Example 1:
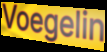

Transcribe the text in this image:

Voegelin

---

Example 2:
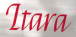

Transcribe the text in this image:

Itara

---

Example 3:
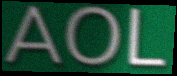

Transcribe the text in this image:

AOL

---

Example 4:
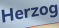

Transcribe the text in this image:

Herzog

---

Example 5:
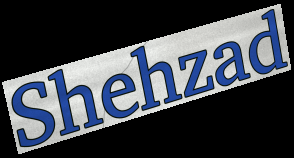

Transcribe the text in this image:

Shehzad